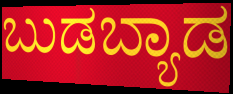
ಬುಡಬ್ಯಾಡ